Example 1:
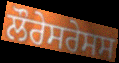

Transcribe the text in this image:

ਲੌਰੇਸਰੇਸਸ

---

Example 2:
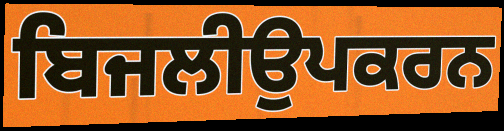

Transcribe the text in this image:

ਬਿਜਲੀਉਪਕਰਨ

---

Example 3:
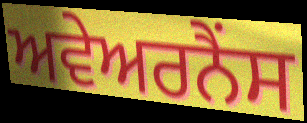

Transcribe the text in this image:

ਅਵੇਅਰਨੈਂਸ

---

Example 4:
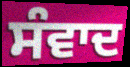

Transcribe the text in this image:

ਸੰਵਾਦ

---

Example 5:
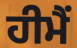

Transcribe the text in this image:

ਹੀਮੈਂ